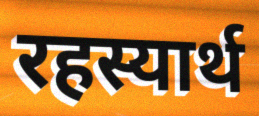
रहस्यार्थ